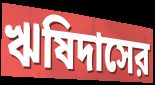
ঋষিদাসের